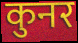
कुनर